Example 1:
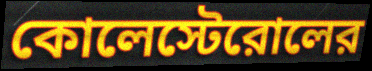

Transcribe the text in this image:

কোলেস্টেরোলের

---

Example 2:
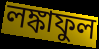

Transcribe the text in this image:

লঙ্কাফুল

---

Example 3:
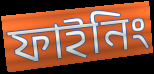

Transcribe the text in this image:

ফাইনিং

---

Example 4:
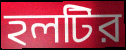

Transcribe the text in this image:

হলটির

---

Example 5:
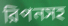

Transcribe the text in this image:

রিপনসহ